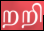
றறி